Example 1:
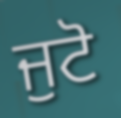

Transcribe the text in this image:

ਜੁਟੋ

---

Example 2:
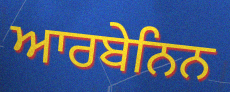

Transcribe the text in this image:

ਆਰਬੇਨਿਨ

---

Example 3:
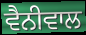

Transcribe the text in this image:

ਵੈਨੀਵਾਲ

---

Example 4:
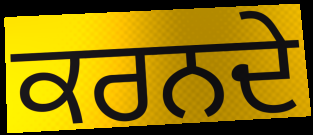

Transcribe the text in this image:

ਕਰਨਦੇ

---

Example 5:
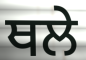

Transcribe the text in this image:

ਥਲੇ